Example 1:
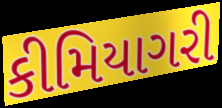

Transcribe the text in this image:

કીમિયાગરી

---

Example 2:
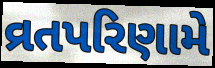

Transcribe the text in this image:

વ્રતપરિણામે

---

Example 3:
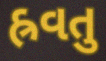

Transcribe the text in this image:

હ્રવતુ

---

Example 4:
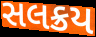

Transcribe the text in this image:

સલક્રય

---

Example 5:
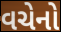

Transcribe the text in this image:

વચેનો